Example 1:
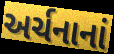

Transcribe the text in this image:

અર્ચનાનાં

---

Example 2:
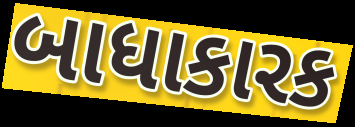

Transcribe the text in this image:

બાધાકારક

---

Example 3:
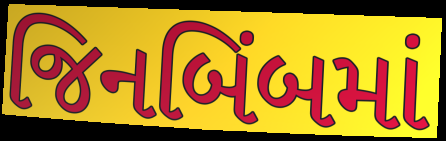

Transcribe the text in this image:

જિનબિંબમાં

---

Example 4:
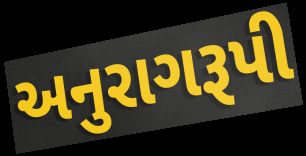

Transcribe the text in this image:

અનુરાગરૂપી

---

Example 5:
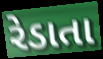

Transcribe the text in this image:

રેડાતા